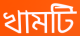
খামটি